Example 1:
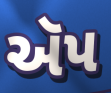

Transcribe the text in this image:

ઍપ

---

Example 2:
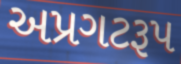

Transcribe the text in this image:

અપ્રગટરૂપ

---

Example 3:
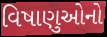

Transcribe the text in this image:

વિષાણુઓનો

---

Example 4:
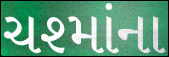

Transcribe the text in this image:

ચશ્માંના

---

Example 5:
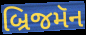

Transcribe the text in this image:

બ્રિજમૅન